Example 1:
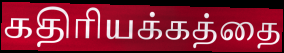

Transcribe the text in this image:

கதிரியக்கத்தை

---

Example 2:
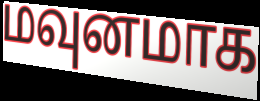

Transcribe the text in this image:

மவுனமாக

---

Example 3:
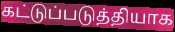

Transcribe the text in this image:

கட்டுப்படுத்தியாக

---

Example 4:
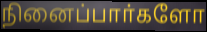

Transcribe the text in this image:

நினைப்பார்களோ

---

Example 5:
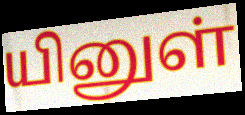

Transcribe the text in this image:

யினுள்